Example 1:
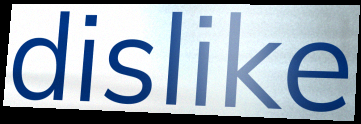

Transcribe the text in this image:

dislike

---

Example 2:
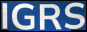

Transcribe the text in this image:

IGRS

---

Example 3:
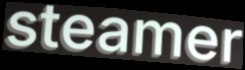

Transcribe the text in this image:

steamer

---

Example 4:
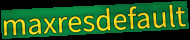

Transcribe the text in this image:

maxresdefault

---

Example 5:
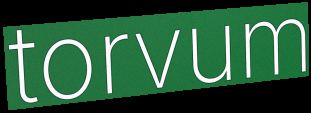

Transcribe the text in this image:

torvum